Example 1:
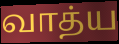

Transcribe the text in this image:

வாத்ய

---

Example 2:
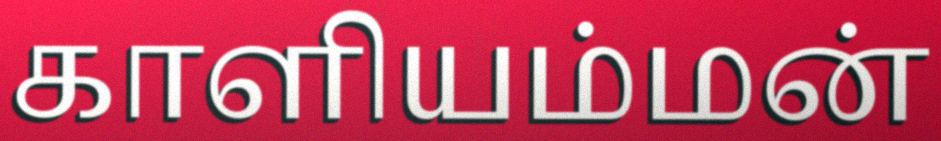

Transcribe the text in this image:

காளியம்மன்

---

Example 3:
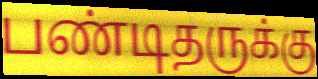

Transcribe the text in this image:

பண்டிதருக்கு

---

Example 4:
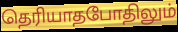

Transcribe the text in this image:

தெரியாதபோதிலும்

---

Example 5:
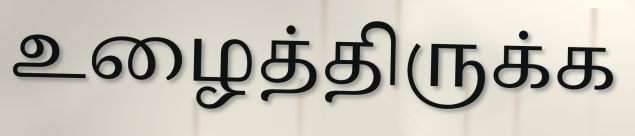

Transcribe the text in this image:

உழைத்திருக்க